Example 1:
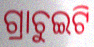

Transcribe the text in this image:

ଗ୍ରାଚୁଇଟି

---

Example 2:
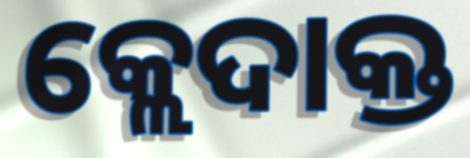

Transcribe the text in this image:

କ୍ଲେଦାକ୍ତ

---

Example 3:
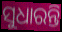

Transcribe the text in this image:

ସୁଧାରନ୍ତି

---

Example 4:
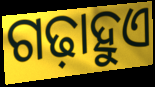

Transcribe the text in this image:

ଗଢ଼ାହୁଏ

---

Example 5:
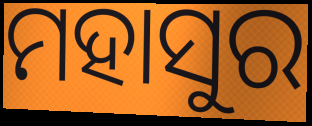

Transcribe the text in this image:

ମହାସୁର